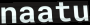
naatu